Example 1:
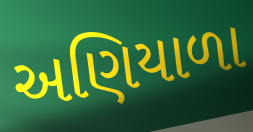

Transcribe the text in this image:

અણિયાળા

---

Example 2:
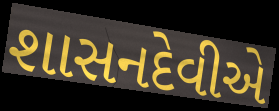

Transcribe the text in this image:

શાસનદેવીએ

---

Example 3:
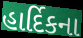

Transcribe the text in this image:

હાર્દિકના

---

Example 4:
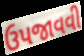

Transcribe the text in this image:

ઉપજાવવી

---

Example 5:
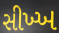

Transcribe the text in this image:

સીખ્ખ